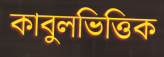
কাবুলভিত্তিক